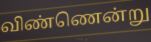
விண்ணென்று